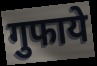
गुफाये